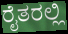
ರೈತರಲ್ಲಿ